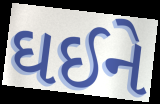
ઘઈને